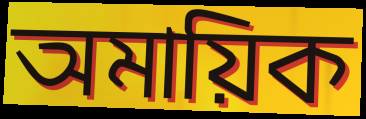
অমায়িক